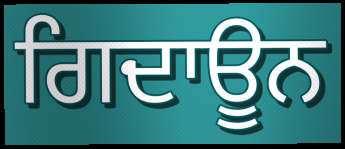
ਗਿਦਾਊਨ